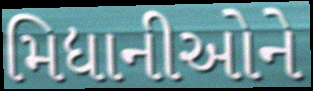
મિદ્યાનીઓને